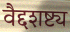
वैद्दशष्ट्य